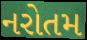
નરોતમ